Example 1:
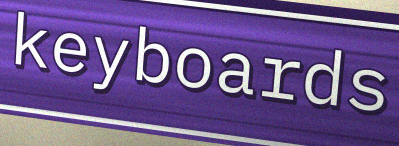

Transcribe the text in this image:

keyboards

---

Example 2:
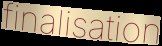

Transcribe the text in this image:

finalisation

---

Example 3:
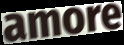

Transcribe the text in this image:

amore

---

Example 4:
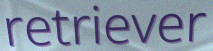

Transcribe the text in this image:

retriever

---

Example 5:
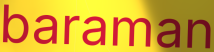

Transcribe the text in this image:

baraman